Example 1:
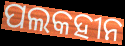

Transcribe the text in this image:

ପଲକହୀନ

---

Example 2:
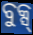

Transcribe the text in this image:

ବୁକ୍ସ୍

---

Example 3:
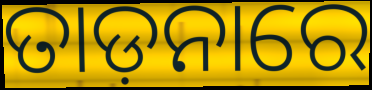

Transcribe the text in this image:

ତାଡ଼ନାରେ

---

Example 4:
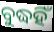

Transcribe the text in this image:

ବୁଦ୍ଧହିଁ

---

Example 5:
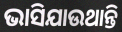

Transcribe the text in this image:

ଭାସିଯାଉଥାନ୍ତି